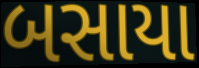
બસાયા